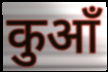
कुआँ